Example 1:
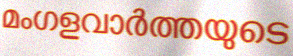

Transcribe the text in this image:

മംഗളവാർത്തയുടെ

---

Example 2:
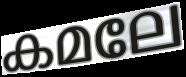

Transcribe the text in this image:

കമലേ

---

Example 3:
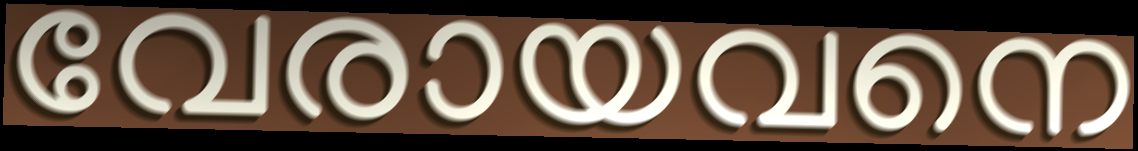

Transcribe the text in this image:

വേരായവനെ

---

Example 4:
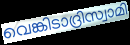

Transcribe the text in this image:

വെങ്കിടാദ്രിസ്വാമി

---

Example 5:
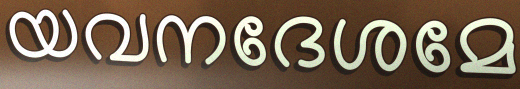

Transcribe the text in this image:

യവനദേശമേ